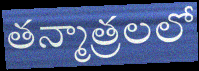
తన్మాత్రలలో